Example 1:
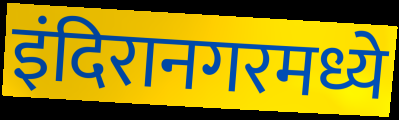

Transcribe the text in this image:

इंदिरानगरमध्ये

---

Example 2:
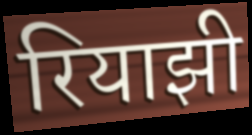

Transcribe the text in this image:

रियाझी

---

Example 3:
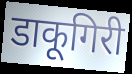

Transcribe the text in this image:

डाकूगिरी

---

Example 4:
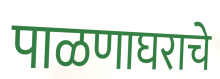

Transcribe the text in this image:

पाळणाघराचे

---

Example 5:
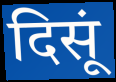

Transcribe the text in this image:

दिसूं